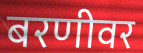
बरणीवर